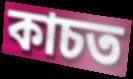
কাচত